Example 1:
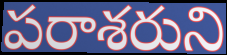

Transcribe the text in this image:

పరాశరుని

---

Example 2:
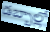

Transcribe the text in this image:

డబ్బాల్లో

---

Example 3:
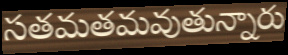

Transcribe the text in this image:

సతమతమవుతున్నారు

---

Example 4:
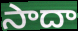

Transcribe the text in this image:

సాదా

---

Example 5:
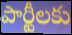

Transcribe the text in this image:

పార్టీలకు